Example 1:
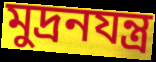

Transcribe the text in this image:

মুদ্রনযন্ত্র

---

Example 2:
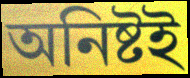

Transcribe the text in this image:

অনিষ্টই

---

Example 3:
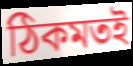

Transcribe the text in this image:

ঠিকমতই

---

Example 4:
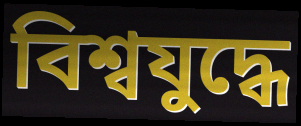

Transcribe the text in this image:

বিশ্বযুদ্ধে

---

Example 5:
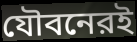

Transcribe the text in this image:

যৌবনেরই